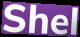
Shel